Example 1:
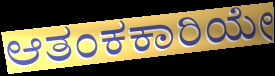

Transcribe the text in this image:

ಆತಂಕಕಾರಿಯೇ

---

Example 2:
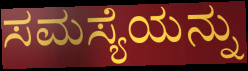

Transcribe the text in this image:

ಸಮಸ್ಯೆಯನ್ನು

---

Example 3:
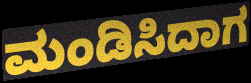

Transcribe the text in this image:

ಮಂಡಿಸಿದಾಗ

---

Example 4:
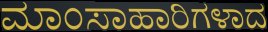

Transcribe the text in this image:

ಮಾಂಸಾಹಾರಿಗಳಾದ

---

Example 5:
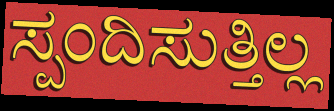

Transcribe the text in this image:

ಸ್ಪಂದಿಸುತ್ತಿಲ್ಲ